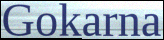
Gokarna